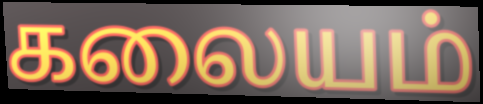
கலையம்